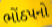
ભોંઠપનો